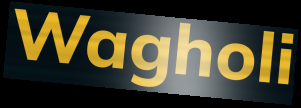
Wagholi